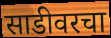
साडीवरचा